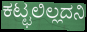
ಕಟ್ಟಲಿಲ್ಲದನಿ